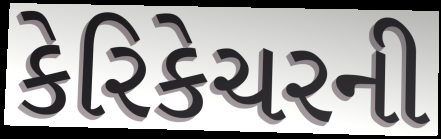
કેરિકેચરની